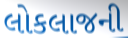
લોકલાજની